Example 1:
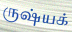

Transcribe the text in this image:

ருஷ்யக்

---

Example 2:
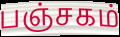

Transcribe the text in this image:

பஞ்சகம்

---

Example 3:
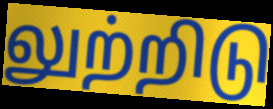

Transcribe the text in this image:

லுற்றிடு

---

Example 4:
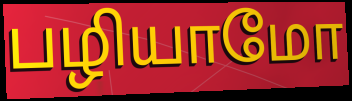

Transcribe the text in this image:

பழியாமோ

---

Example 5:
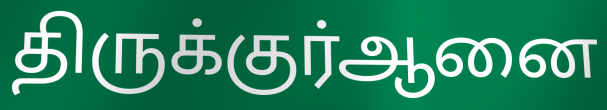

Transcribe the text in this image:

திருக்குர்ஆனை